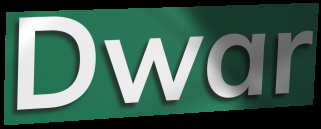
Dwar